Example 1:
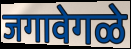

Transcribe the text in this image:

जगावेगळे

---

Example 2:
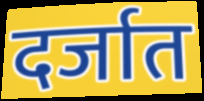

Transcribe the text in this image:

दर्जात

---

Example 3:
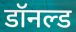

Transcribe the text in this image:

डॉनल्ड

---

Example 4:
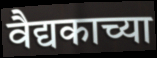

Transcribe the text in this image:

वैद्यकाच्या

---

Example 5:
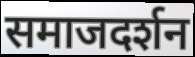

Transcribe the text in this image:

समाजदर्शन